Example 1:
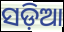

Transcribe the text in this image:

ସଡ଼ିଆ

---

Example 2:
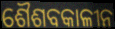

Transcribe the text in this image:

ଶୈଶବକାଳୀନ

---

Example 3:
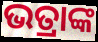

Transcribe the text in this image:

ଭତ୍ରାଙ୍କ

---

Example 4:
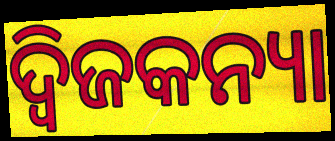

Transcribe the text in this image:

ଦ୍ୱିଜକନ୍ୟା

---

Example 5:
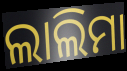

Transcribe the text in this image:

ଲାଲିମା